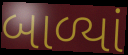
બાળ્યાં